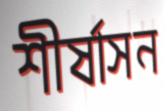
শীর্ষাসন